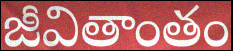
జీవితాంతం